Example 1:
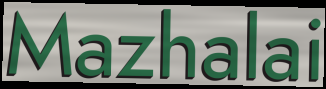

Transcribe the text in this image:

Mazhalai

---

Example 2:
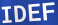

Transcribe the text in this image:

IDEF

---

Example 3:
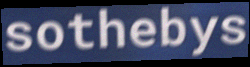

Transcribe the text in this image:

sothebys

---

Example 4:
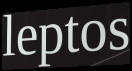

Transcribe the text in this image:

leptos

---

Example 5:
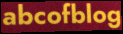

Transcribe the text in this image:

abcofblog